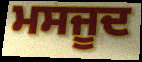
ਮਸਜੂਦ